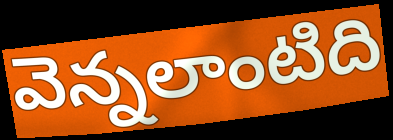
వెన్నలాంటిది